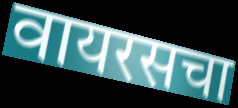
वायरसचा